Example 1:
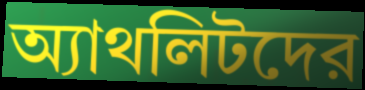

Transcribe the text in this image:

অ্যাথলিটদের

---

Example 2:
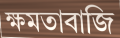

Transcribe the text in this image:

ক্ষমতাবাজি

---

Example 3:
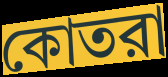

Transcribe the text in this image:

কোতরা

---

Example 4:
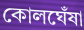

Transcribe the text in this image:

কোলঘেঁষা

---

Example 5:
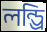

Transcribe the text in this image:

লন্ড্রি